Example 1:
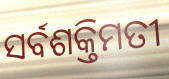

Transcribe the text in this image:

ସର୍ବଶକ୍ତିମତୀ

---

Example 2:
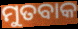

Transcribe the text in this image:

ମୁତବାକ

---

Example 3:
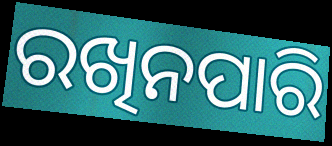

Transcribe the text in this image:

ରଖିନପାରି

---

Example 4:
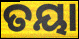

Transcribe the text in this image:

ତୟା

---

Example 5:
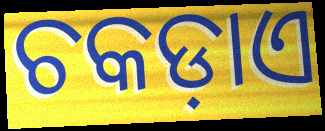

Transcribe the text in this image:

ଚକଡ଼ାଏ